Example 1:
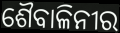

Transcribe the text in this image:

ଶୈବାଳିନୀର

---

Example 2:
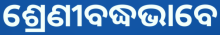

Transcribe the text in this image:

ଶ୍ରେଣୀବଦ୍ଧଭାବେ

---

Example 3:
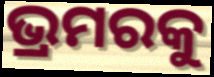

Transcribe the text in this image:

ଭ୍ରମରକୁ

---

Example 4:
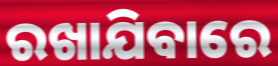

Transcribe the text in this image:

ରଖାଯିବାରେ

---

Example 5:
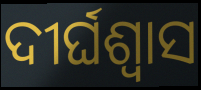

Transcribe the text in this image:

ଦୀର୍ଘଶ୍ଵାସ